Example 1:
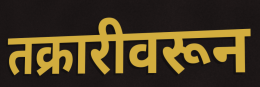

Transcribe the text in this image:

तक्रारीवरून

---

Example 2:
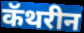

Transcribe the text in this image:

कॅथरीन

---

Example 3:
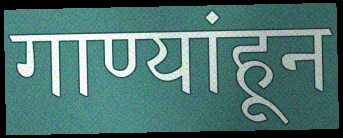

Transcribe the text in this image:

गाण्यांहून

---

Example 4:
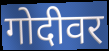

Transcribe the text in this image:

गोदीवर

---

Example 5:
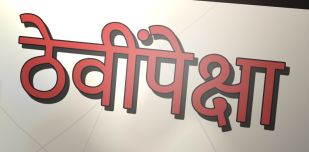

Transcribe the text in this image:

ठेवींपेक्षा